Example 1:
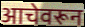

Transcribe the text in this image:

आचेवरून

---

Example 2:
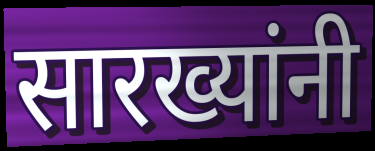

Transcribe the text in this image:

सारख्यांनी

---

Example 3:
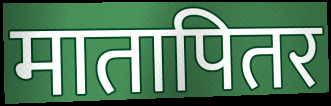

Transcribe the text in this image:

मातापितर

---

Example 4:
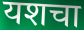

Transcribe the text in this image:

यशचा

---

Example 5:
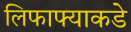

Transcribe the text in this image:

लिफाफ्याकडे